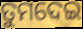
ତୁମଦେଇ